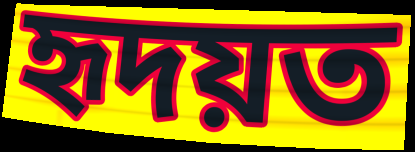
হৃদয়ত